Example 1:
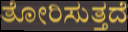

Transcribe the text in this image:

ತೋರಿಸುತ್ತದೆ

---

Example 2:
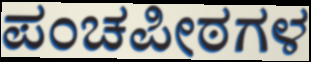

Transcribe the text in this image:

ಪಂಚಪೀಠಗಳ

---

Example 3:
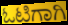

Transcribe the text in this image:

ಓಟಿಗಾಗಿ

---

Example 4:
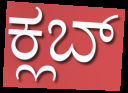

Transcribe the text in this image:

ಕ್ಲಬ್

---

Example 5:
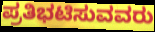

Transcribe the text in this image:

ಪ್ರತಿಭಟಿಸುವವರು